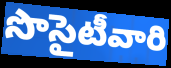
సొసైటీవారి